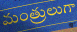
మంత్రులుగా